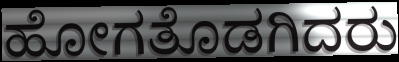
ಹೋಗತೊಡಗಿದರು